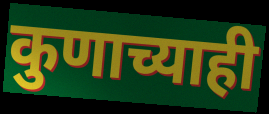
कुणाच्याही